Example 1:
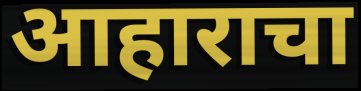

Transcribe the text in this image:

आहाराचा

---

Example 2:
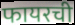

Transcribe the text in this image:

फायरची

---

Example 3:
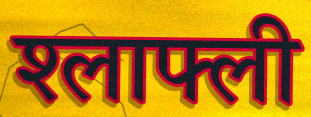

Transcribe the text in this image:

श्लाफ्ली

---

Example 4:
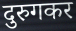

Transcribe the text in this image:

दुरुगकर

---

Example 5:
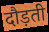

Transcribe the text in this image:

दौड़ती